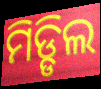
ମିଡ୍ଡିଲ